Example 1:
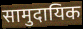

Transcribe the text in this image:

सामुदायिक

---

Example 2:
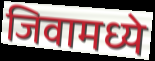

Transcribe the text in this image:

जिवामध्ये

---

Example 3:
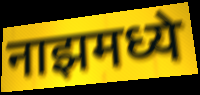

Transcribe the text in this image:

नाझमध्ये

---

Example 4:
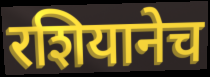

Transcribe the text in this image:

रशियानेच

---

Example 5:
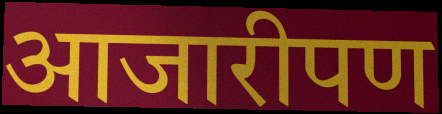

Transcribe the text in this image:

आजारीपण